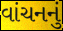
વાંચનનું